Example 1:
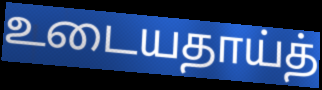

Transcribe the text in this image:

உடையதாய்த்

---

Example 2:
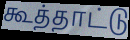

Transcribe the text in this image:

கூத்தாட்டு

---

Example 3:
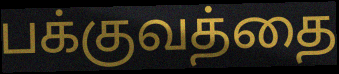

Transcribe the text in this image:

பக்குவத்தை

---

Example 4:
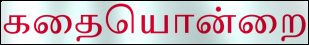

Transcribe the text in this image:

கதையொன்றை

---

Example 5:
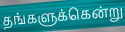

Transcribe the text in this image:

தங்களுக்கென்று